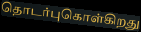
தொடர்புகொள்கிறது